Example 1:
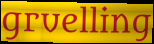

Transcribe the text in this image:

gruelling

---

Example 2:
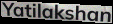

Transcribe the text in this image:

Yatilakshan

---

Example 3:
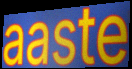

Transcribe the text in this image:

aaste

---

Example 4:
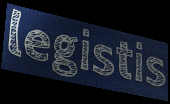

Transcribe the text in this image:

legistis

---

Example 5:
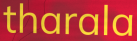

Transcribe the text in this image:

tharala